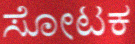
ಸೋಟಕ